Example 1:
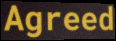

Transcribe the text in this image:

Agreed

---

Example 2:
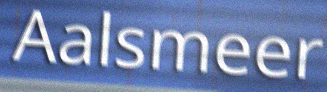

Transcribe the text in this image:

Aalsmeer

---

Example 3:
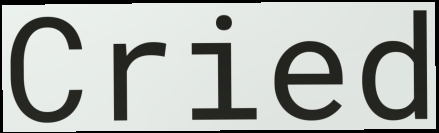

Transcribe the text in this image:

Cried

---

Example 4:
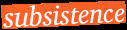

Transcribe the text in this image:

subsistence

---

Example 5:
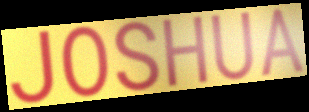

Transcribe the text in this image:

JOSHUA